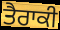
ਤੈਰਾਕੀ